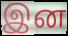
இன